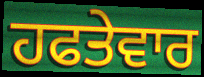
ਹਫਤੇਵਾਰ